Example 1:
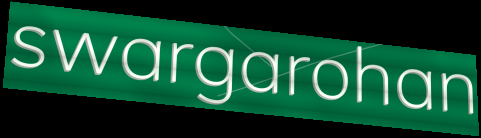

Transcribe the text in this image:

swargarohan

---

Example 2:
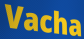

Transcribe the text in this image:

Vacha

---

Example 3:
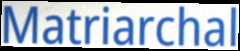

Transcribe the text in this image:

Matriarchal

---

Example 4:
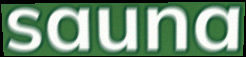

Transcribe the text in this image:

sauna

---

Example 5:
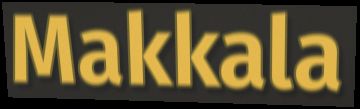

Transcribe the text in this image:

Makkala